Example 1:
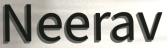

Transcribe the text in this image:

Neerav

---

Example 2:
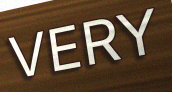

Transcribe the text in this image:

VERY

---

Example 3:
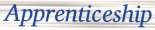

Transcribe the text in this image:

Apprenticeship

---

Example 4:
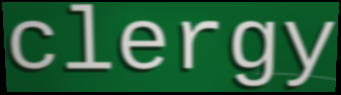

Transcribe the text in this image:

clergy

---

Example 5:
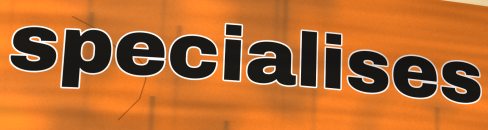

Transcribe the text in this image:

specialises